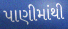
પાણીમાંથી